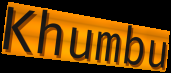
Khumbu